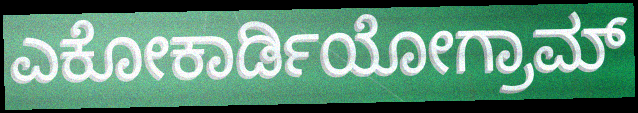
ಎಕೋಕಾರ್ಡಿಯೋಗ್ರಾಮ್